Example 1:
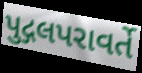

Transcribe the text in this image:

પુદ્ગલપરાવર્તે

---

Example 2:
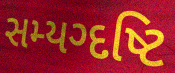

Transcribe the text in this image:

સમ્યગ્દષ્ટિ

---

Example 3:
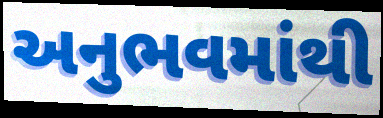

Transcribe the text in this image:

અનુભવમાંથી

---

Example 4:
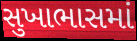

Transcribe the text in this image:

સુખાભાસમાં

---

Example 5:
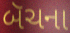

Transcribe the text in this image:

બૅચના